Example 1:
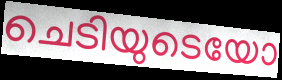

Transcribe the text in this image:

ചെടിയുടെയോ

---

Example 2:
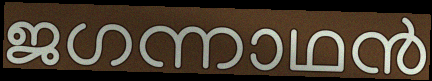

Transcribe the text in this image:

ജഗന്നാഥൻ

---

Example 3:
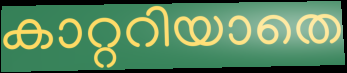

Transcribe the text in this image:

കാറ്ററിയാതെ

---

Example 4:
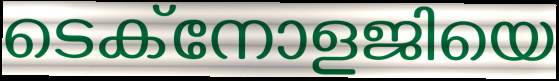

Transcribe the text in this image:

ടെക്‌നോളജിയെ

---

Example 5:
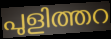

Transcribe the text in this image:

പുളിത്തറ